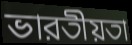
ভারতীয়তা